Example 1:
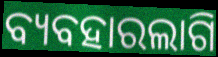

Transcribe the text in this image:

ବ୍ୟବହାରଲାଗି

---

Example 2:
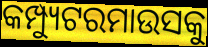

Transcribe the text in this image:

କମ୍ପ୍ୟୁଟରମାଉସକୁ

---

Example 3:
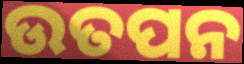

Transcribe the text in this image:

ଉତପନ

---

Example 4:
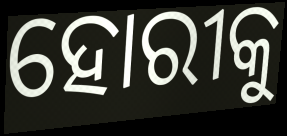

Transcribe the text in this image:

ହୋରୀକୁ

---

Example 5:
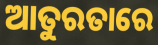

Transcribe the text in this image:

ଆତୁରତାରେ